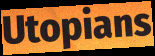
Utopians